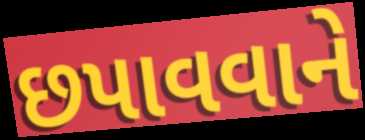
છપાવવાને